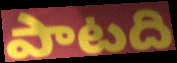
పాటది